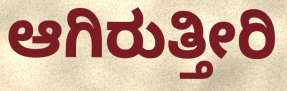
ಆಗಿರುತ್ತೀರಿ